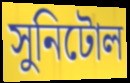
সুনিটোল